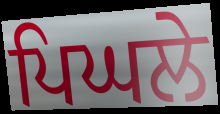
ਪਿਘਲੇ